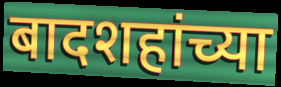
बादशहांच्या